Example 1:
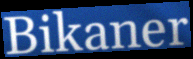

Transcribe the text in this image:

Bikaner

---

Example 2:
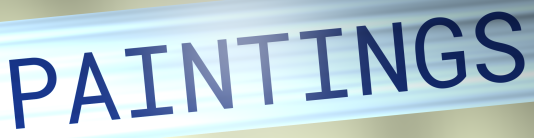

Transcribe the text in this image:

PAINTINGS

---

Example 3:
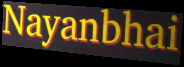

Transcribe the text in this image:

Nayanbhai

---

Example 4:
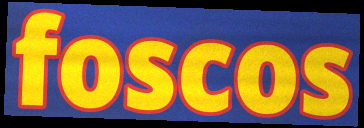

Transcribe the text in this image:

foscos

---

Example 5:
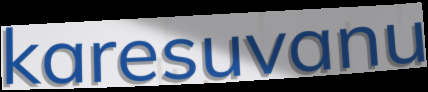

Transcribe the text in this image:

karesuvanu